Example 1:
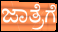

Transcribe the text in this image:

ಜಾತ್ರೆಗೆ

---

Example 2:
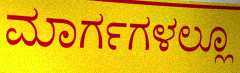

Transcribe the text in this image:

ಮಾರ್ಗಗಳಲ್ಲೂ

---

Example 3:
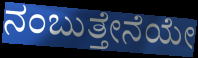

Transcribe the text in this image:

ನಂಬುತ್ತೇನೆಯೇ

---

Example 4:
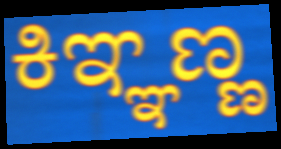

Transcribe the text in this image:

ಕಿಞ್ಞಣ್ಣ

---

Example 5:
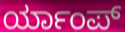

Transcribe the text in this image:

ರ್ಯಾಂಪ್